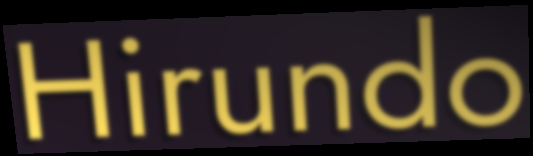
Hirundo